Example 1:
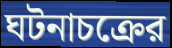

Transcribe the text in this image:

ঘটনাচক্রের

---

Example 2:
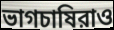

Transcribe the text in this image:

ভাগচাষিরাও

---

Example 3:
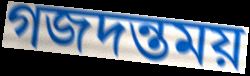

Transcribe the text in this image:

গজদন্তময়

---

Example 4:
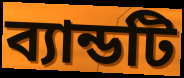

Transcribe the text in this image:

ব্যান্ডটি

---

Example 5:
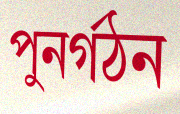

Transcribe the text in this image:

পুনর্গঠন